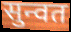
सुन्वत